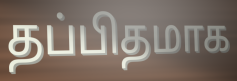
தப்பிதமாக